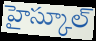
హైస్కూల్